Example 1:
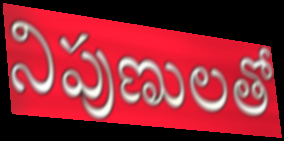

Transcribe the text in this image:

నిపుణులతో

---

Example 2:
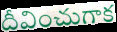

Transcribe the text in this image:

దీవించుగాక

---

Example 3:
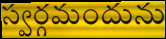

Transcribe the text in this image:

స్వర్గమందును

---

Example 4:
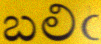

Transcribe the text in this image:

బలిఁ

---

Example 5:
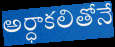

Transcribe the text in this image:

అర్ధాకలితోనే